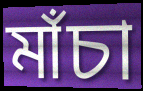
মাঁচা